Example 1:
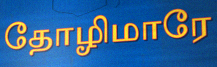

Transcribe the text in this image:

தோழிமாரே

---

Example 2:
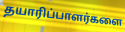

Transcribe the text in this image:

தயாரிப்பாளர்களை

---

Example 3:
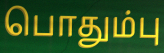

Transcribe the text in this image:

பொதும்பு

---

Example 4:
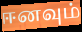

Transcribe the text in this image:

ஈனவும்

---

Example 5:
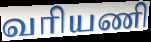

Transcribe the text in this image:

வரியணி